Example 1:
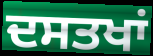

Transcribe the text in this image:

ਦਸਤਖਾਂ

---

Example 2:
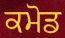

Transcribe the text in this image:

ਕਮੋਡ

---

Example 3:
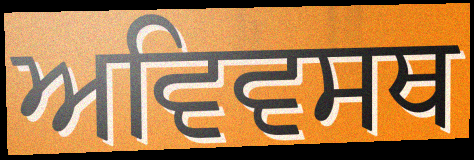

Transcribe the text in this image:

ਅਵਿਵਸਥ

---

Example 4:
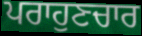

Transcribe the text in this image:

ਪਰਾਹੁਣਚਾਰ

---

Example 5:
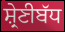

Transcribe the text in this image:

ਸ਼੍ਰੇਣੀਬੱਧ